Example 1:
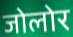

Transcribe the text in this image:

जोलोर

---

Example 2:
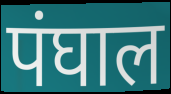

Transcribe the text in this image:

पंघाल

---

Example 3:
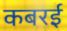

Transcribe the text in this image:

कबरई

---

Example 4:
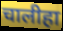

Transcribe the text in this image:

चालीहा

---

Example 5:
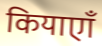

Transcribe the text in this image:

कियाएाँ